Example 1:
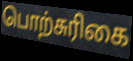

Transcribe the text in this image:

பொற்சுரிகை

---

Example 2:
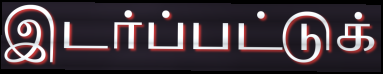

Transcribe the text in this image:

இடர்ப்பட்டுக்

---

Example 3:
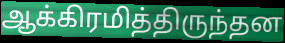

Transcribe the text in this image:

ஆக்கிரமித்திருந்தன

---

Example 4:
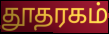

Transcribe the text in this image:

தூதரகம்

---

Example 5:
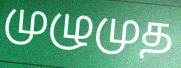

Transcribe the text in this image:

முழுமுத